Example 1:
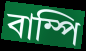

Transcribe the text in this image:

বাম্পি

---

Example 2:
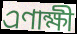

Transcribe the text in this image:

এণাক্ষী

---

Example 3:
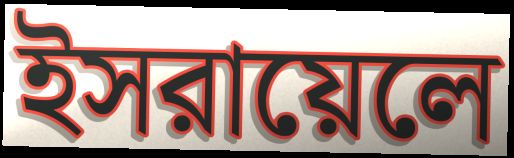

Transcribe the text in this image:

ইসরায়েলে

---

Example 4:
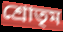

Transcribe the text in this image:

শ্রোতৃম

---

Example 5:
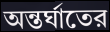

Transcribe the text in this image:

অন্তর্ঘাতের